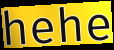
hehe